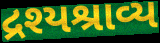
દ્રશ્યશ્રાવ્ય